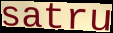
satru